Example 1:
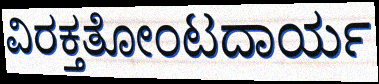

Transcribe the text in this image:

ವಿರಕ್ತತೋಂಟದಾರ್ಯ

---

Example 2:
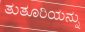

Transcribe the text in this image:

ತುತೂರಿಯನ್ನು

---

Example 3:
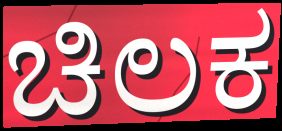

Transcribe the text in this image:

ಚಿಲಕ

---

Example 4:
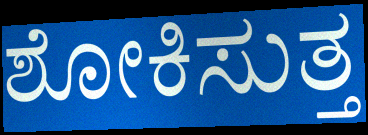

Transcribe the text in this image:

ಶೋಕಿಸುತ್ತ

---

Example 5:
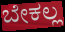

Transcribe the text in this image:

ಬೇಕಲ್ಲ